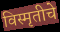
विस्मृतीचे